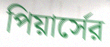
পিয়ার্সের